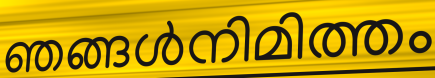
ഞങ്ങൾനിമിത്തം